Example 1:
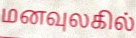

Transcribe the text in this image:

மனவுலகில்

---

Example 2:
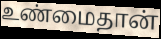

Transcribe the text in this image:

உண்மைதான்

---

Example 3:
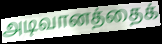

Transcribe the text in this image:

அடிவானத்தைக்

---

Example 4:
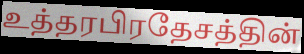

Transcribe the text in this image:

உத்தரபிரதேசத்தின்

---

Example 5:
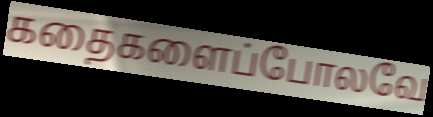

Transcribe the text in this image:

கதைகளைப்போலவே